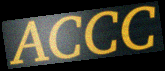
ACCC